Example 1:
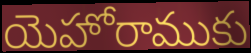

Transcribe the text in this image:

యెహోరాముకు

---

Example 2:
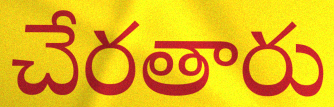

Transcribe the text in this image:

చేరతారు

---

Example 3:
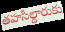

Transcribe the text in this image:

తహసీల్దారుకు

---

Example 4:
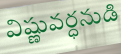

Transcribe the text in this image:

విష్ణువర్ధనుడి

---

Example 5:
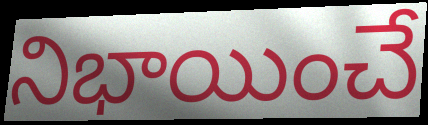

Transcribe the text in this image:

నిభాయించే